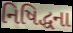
નિષિદ્ધના